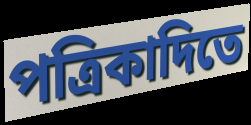
পত্রিকাদিতে